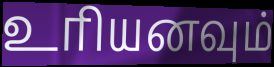
உரியனவும்